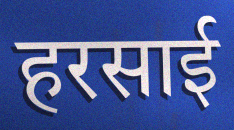
हरसाई